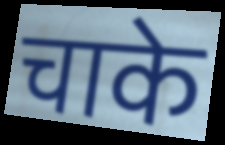
चाके